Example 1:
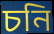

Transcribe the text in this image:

চনি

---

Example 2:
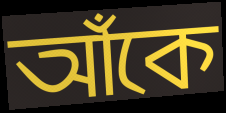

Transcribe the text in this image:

আঁকে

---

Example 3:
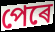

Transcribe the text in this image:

পেৰে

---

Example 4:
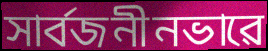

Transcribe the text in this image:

সাৰ্বজনীনভাৱে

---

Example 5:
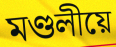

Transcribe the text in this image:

মণ্ডলীয়ে